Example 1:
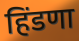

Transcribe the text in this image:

हिंडणा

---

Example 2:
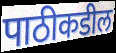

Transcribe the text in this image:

पाठीकडील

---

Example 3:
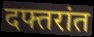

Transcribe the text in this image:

दफ्तरांत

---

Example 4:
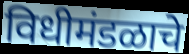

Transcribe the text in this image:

विधीमंडळाचे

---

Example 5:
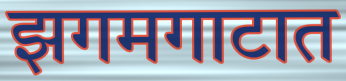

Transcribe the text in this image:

झगमगाटात